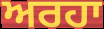
ਅਰਹਾ